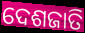
ଦେଶଜାତି